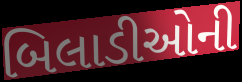
બિલાડીઓની